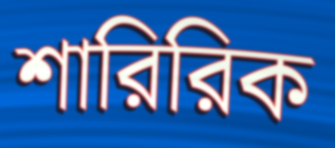
শারিরিক